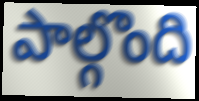
పాల్గొంది